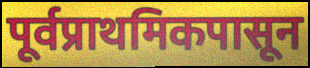
पूर्वप्राथमिकपासून